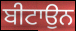
ਬੀਟਾਉਨ